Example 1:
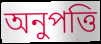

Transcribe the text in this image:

অনুপত্তি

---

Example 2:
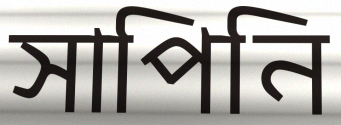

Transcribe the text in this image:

সাপিনি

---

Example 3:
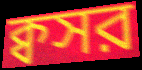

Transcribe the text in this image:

ক্বসর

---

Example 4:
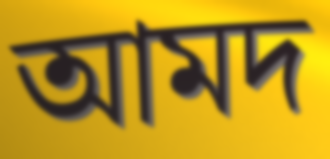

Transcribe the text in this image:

আমদ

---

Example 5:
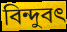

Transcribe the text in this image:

বিন্দুবৎ